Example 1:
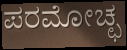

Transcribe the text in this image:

ಪರಮೋಚ್ಛ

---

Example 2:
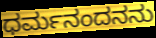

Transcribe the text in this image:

ಧರ್ಮನಂದನನು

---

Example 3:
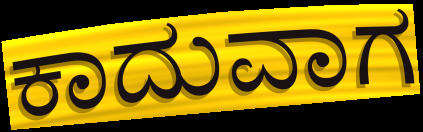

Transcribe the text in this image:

ಕಾದುವಾಗ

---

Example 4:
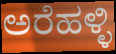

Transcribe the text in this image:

ಅರೆಹಳ್ಳಿ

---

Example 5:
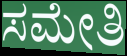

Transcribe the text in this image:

ಸಮೇತಿ